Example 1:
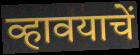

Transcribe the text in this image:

व्हावयाचें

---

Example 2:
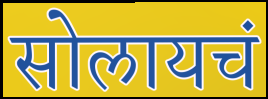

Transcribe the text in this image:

सोलायचं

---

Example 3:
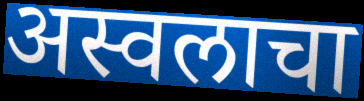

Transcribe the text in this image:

अस्वलाचा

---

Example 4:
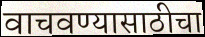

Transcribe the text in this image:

वाचवण्यासाठीचा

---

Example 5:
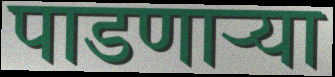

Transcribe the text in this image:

पाडणाऱ्या